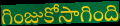
గింజుకోసాగింది